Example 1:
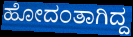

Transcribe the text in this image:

ಹೋದಂತಾಗಿದ್ದ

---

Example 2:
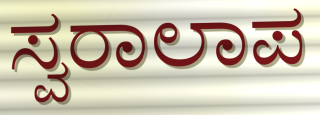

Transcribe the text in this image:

ಸ್ವರಾಲಾಪ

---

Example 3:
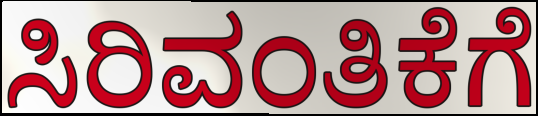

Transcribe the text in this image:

ಸಿರಿವಂತಿಕೆಗೆ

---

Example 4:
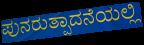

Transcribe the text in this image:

ಪುನರುತ್ಪಾದನೆಯಲ್ಲಿ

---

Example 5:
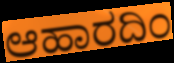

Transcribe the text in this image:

ಆಹಾರದಿಂ